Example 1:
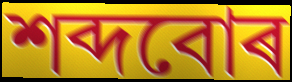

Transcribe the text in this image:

শব্দবোৰ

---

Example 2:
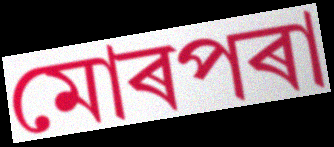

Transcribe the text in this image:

মোৰপৰা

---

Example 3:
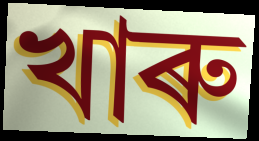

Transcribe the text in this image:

খাৰু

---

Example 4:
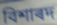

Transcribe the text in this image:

বিশাৰদ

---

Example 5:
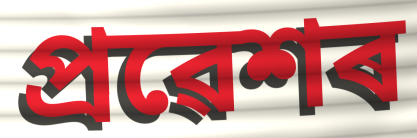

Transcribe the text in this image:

প্ৰৱেশৰ